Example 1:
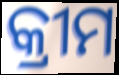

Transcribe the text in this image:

କ୍ରୀମ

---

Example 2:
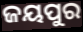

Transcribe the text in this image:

ଜୟପୁର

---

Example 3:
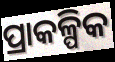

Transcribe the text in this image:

ପ୍ରାକଳ୍ପିକ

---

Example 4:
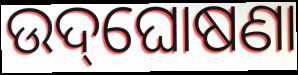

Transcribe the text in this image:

ଉଦ୍‌ଘୋଷଣା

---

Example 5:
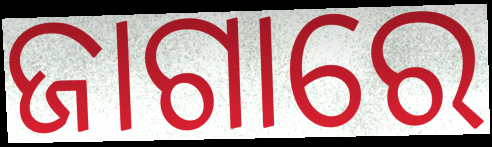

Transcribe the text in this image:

ଜାଗାରେ